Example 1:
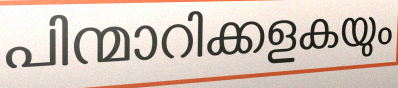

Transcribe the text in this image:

പിന്മാറിക്കളകയും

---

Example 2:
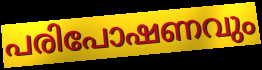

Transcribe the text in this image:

പരിപോഷണവും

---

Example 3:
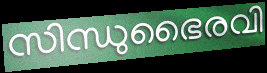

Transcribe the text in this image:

സിന്ധുഭൈരവി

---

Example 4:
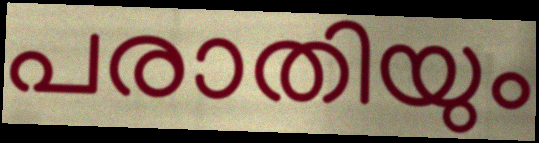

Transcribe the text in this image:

പരാതിയും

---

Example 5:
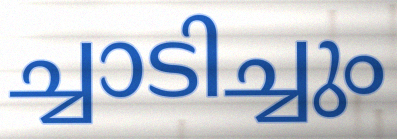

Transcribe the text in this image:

ച്ചാടിച്ചും